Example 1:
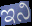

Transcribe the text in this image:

ಇನಿ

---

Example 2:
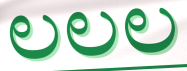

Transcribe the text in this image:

ಲಲಲ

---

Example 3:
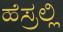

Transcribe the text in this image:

ಹೆಸ್ರಲ್ಲಿ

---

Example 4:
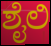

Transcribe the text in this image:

ಶೈಲಿ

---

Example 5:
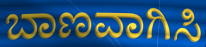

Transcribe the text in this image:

ಬಾಣವಾಗಿಸಿ